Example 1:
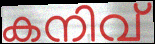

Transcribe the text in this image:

കനിവ്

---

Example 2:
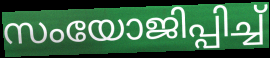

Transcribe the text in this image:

സംയോജിപ്പിച്ച്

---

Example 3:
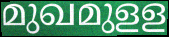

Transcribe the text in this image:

മുഖമുളള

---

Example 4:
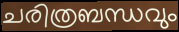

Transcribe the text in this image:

ചരിത്രബന്ധവും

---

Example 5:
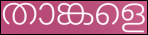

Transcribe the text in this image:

താങ്കളെ